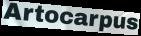
Artocarpus